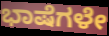
ಭಾಷೆಗಳೇ